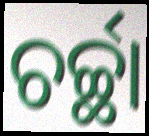
ଚର୍ଚ୍ଛା